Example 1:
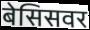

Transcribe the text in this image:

बेसिसवर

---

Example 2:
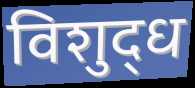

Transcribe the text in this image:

विशुद्ध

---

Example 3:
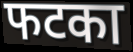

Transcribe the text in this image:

फटका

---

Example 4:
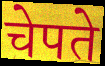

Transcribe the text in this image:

चेपते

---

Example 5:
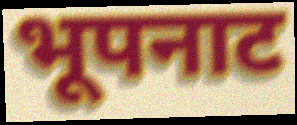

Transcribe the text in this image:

भूपनाट